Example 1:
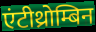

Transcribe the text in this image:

एंटीथ्रोम्बिन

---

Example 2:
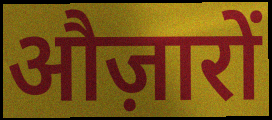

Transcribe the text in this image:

औज़ारों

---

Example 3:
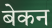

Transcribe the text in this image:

बेकन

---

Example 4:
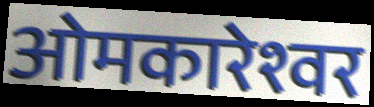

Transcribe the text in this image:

ओमकारेश्वर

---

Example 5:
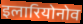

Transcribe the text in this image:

इलारियोनोव